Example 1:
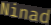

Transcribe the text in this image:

Ninad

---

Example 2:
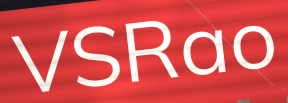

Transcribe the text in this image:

VSRao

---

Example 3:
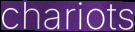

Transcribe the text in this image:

chariots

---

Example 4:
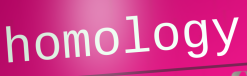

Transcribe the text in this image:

homology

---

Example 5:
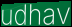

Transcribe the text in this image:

udhav